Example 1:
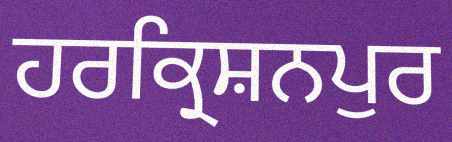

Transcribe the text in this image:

ਹਰਕ੍ਰਿਸ਼ਨਪੁਰ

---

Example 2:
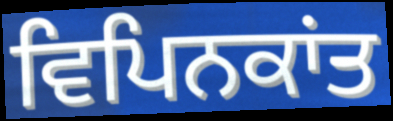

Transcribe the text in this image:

ਵਿਪਿਨਕਾਂਤ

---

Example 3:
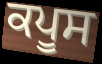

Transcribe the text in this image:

ਕਪੂਸ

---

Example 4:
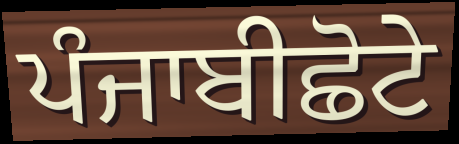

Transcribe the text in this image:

ਪੰਜਾਬੀਛੋਟੇ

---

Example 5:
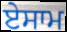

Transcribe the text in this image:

ਏਸਾਮ